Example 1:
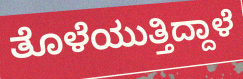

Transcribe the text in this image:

ತೊಳೆಯುತ್ತಿದ್ದಾಳೆ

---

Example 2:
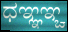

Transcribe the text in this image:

ಧಞ್ಞಞ್ಚ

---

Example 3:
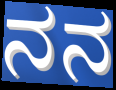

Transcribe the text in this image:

ನನ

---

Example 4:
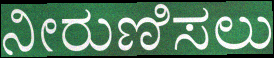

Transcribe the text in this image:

ನೀರುಣಿಸಲು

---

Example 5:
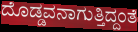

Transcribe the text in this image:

ದೊಡ್ಡವನಾಗುತ್ತಿದ್ದಂತೆ